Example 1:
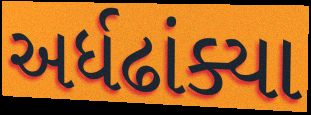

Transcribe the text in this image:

અર્ધઢાંક્યા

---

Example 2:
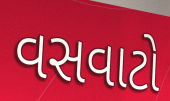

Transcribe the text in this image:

વસવાટો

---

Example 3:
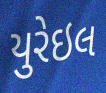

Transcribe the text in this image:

યુરેઇલ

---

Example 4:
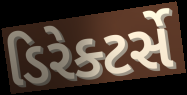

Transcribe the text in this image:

ડિરેક્ટર્સે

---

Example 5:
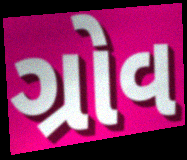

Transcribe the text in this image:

ગ્રોવ